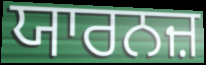
ਯਾਰਨਜ਼